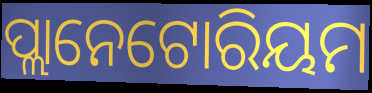
ପ୍ଲାନେଟୋରିୟମ